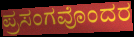
ಪ್ರಸಂಗವೊಂದರ